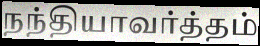
நந்தியாவர்த்தம்